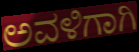
ಅವಳಿಗಾಗಿ